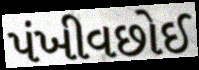
પંખીવછોઈ